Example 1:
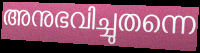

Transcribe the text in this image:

അനുഭവിച്ചുതന്നെ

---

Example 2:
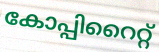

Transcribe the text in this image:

കോപ്പിറൈറ്റ്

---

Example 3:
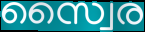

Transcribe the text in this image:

സ്വൈര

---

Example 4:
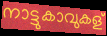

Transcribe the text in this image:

നാട്ടുകാവുകള്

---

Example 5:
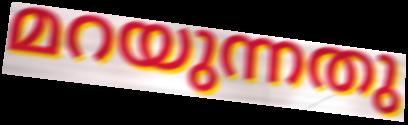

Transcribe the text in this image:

മറയുന്നതു